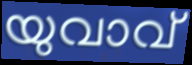
യുവാവ്